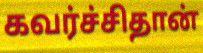
கவர்ச்சிதான்